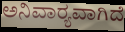
ಅನಿವಾರ‍್ಯವಾಗಿದೆ